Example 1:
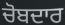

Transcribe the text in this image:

ਚੋਬਦਾਰ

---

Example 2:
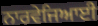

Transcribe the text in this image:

ਨਾਰਵੇਜਿਆਈ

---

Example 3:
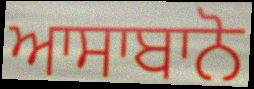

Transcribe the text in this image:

ਆਸਾਬਾਨੋ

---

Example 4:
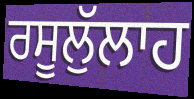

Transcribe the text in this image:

ਰਸੂਲੁੱਲਾਹ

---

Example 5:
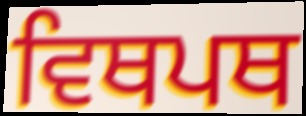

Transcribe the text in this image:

ਵਿਥਪਥ